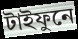
টাইফুনে